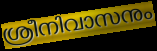
ശ്രീനിവാസനും